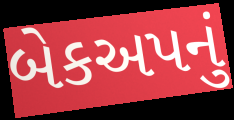
બેકઅપનું